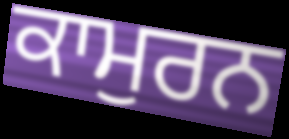
ਕਾਮੁਰਨ